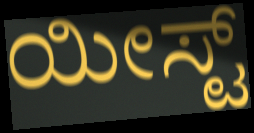
ಯೀಸ್ಟ್